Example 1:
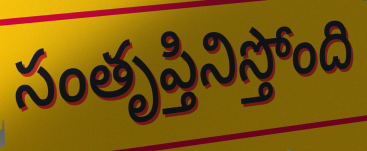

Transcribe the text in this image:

సంతృప్తినిస్తోంది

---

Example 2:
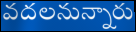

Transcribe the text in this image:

వదలనున్నారు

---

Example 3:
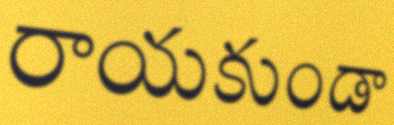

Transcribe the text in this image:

రాయకుండా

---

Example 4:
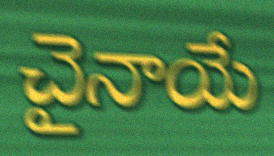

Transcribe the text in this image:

చైనాయే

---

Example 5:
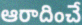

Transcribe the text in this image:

ఆరాదించే